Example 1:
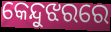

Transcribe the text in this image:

କେନ୍ଦୁଝରରେ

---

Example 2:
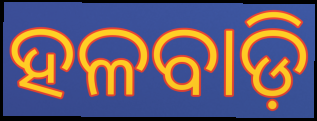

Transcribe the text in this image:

ହଳବାଡ଼ି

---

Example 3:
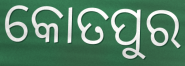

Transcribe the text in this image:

କୋତପୁର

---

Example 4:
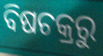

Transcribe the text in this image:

ବିଷଚକ୍ରରୁ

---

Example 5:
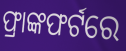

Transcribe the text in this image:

ଫ୍ରାଙ୍କଫର୍ଟରେ